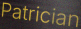
Patrician